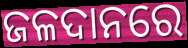
ଜଳଦାନରେ